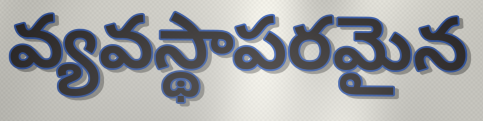
వ్యవస్థాపరమైన